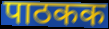
पाठकक